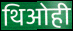
थिओही